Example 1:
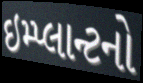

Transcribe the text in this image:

ઇમ્પ્લાન્ટનો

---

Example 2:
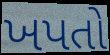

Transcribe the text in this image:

ખપતો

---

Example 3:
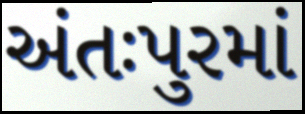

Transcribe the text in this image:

અંતઃપુરમાં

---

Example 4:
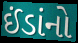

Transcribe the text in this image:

ઈંડાંનો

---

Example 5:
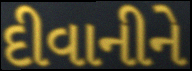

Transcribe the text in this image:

દીવાનીને